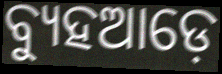
ବ୍ୟୁହଆଡ଼େ